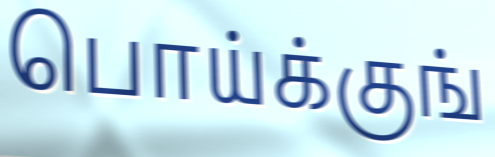
பொய்க்குங்